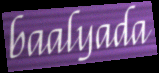
baalyada